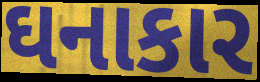
ઘનાકાર